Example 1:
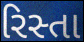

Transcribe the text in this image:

રિસ્તા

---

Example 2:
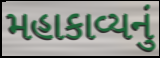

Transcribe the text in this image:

મહાકાવ્યનું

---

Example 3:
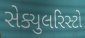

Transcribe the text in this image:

સેક્યુલરિસ્ટો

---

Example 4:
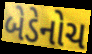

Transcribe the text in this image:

બેડેનોચ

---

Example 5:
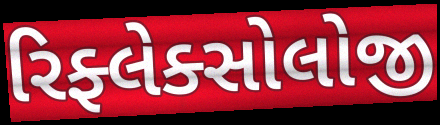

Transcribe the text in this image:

રિફ્લેક્સોલોજી